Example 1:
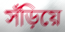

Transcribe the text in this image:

সঁড়িয়ে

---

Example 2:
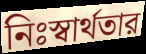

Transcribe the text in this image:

নিঃস্বার্থতার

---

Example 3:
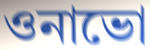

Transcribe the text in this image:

ওনাভো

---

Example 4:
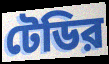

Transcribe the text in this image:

টেডির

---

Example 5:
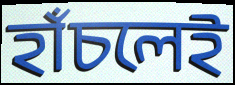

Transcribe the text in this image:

হাঁচলেই